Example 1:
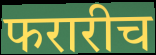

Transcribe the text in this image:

फरारीच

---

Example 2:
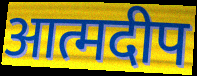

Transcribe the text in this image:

आत्मदीप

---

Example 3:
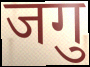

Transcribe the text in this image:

जगु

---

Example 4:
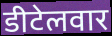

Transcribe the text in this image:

डीटेलवार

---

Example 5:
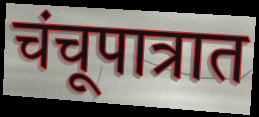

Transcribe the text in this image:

चंचूपात्रात